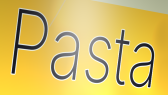
Pasta